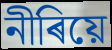
নীৰিয়ে